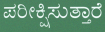
ಪರೀಕ್ಷಿಸುತ್ತಾರೆ